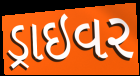
ડ્રાઇવર